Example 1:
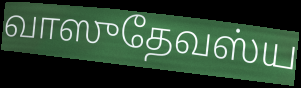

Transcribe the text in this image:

வாஸுதேவஸ்ய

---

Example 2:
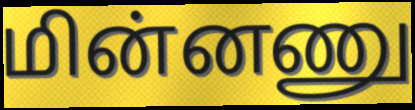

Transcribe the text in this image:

மின்னணு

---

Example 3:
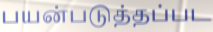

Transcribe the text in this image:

பயன்படுத்தப்பட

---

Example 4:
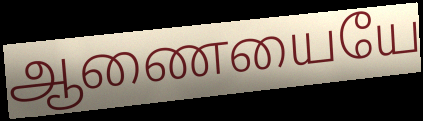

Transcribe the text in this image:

ஆணையையே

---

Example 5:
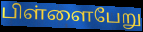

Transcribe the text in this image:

பிள்ளைபேறு